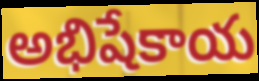
అభిషేకాయ